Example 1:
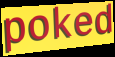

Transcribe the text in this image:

poked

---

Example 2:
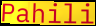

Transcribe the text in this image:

Pahili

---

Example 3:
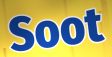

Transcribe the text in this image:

Soot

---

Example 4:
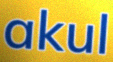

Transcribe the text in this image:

akul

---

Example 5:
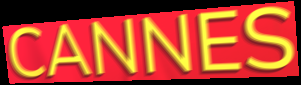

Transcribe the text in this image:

CANNES